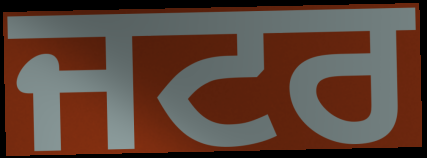
ਜਟਰ